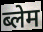
ब्लेम